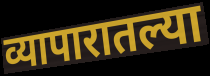
व्यापारातल्या